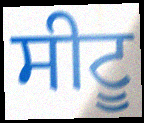
ਸੀਟੂ